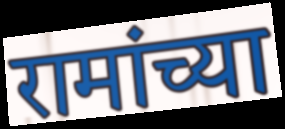
रामांच्या